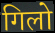
गिलो